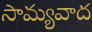
సామ్యవాద